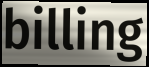
billing